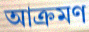
আক্ৰমণ